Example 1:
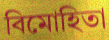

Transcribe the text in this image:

বিমোহিতা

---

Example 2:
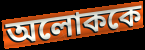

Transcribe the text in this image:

অলোককে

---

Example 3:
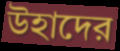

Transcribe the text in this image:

উহাদের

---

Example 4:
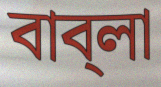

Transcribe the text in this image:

বাব্‌লা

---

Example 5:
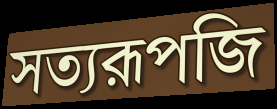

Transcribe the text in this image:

সত্যরূপজি